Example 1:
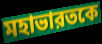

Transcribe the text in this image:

মহাভারতকে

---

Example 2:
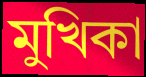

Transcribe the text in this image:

মুখিকা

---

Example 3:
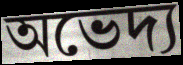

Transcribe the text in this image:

অভেদ্য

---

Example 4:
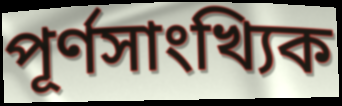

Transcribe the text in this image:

পূর্ণসাংখ্যিক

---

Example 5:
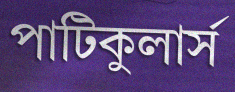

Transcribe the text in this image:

পাটিকুলার্স